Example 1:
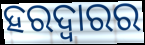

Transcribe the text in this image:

ହରଦ୍ୱାରର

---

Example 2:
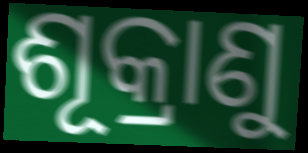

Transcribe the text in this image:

ଶୂକ୍ରାଣୁ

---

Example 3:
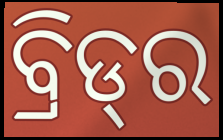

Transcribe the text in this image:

ବ୍ରିଡ୍‌ର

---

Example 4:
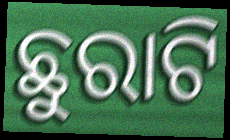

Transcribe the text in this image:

ଛୁରାଟି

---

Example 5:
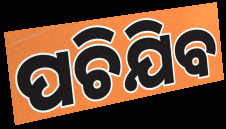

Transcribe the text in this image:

ପଚିଯିବ